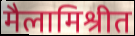
मैलामिश्रीत